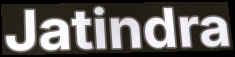
Jatindra